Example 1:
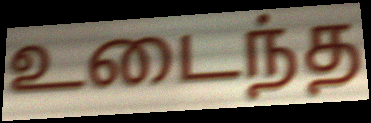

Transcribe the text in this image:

உடைந்த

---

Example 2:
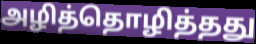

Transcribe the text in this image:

அழித்தொழித்தது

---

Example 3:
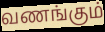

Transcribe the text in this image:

வணங்கும்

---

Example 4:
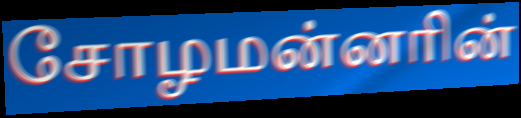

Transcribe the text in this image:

சோழமன்னரின்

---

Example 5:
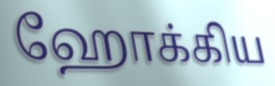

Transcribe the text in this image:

ஹோக்கிய